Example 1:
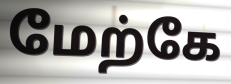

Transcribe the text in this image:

மேற்கே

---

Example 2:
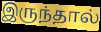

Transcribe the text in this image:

இருந்தால்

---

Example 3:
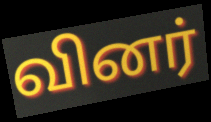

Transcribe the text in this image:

வினர்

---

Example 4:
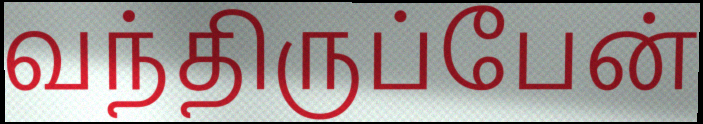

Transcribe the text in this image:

வந்திருப்பேன்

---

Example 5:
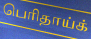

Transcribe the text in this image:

பெரிதாய்க்